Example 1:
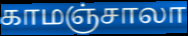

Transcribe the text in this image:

காமஞ்சாலா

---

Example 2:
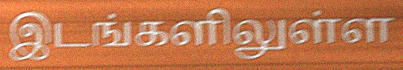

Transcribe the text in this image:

இடங்களிலுள்ள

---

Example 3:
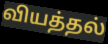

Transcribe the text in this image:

வியத்தல்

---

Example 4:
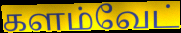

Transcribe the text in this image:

களம்வேட்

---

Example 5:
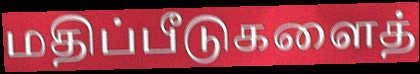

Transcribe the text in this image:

மதிப்பீடுகளைத்